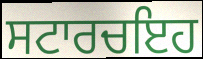
ਸਟਾਰਚਇਹ